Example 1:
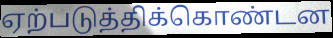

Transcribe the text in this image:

ஏற்படுத்திக்கொண்டன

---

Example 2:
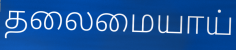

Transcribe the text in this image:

தலைமையாய்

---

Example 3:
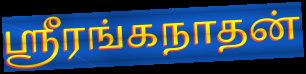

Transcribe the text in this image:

ஸ்ரீரங்கநாதன்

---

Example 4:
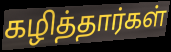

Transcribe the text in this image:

கழித்தார்கள்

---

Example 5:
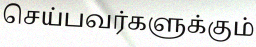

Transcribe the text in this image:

செய்பவர்களுக்கும்